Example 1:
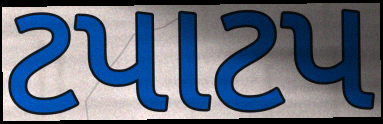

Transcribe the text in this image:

ટપાટપ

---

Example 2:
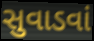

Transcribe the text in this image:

સુવાડવાં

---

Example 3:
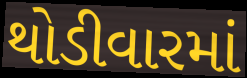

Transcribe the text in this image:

થોડીવારમાં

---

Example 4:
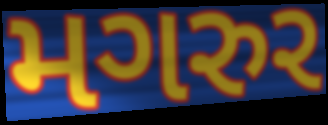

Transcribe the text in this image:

મગરુર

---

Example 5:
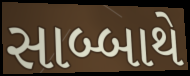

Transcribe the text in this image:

સાબ્બાથે